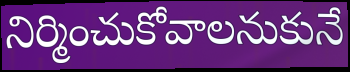
నిర్మించుకోవాలనుకునే